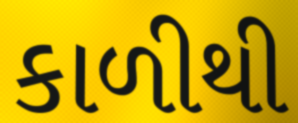
કાળીથી